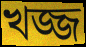
খজ্জ